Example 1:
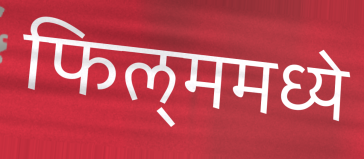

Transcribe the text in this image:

फिल्ममध्ये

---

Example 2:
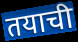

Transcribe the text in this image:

तयाची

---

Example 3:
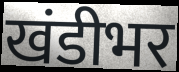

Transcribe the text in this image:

खंडीभर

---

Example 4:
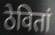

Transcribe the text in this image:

ठेवितां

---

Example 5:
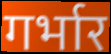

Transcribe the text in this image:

गर्भार